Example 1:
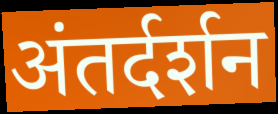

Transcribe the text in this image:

अंतर्दर्शन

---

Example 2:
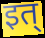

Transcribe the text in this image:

इत्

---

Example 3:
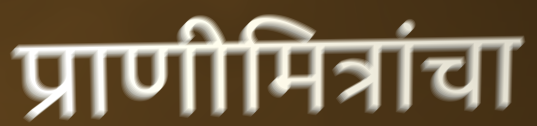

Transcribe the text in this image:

प्राणीमित्रांचा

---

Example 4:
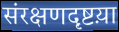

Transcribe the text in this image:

संरक्षणदृष्टय़ा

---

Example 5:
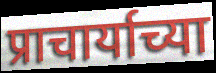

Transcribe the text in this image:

प्राचार्याच्या